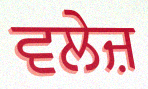
ਵਲੇਜ਼